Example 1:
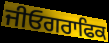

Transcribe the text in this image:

ਜੀਓਗਰਾਫਿਕ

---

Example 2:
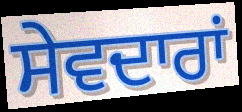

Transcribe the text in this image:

ਸੇਵਦਾਰਾਂ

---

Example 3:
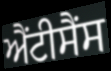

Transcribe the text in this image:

ਐਂਟੀਸੈਂਸ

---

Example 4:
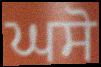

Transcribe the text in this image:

ਘਸੋ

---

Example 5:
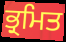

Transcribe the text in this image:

ਭ੍ਰਮਿਤ